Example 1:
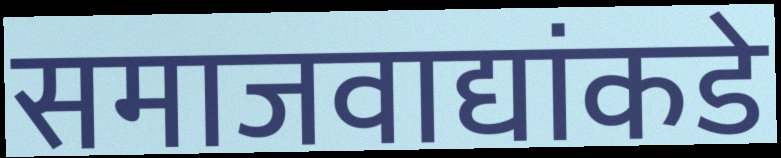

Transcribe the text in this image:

समाजवाद्यांकडे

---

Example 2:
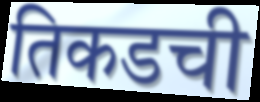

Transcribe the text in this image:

तिकडची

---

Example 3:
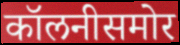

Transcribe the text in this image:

कॉलनीसमोर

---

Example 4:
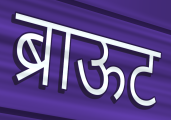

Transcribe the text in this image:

ब्राऊट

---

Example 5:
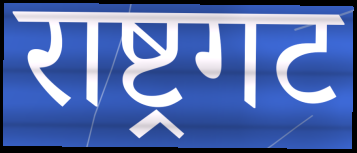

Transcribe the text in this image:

राष्ट्रगट